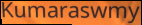
Kumaraswmy